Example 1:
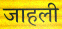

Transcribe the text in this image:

जाहली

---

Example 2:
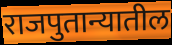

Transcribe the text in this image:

राजपुतान्यातील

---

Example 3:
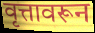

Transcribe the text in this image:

वृत्तावरून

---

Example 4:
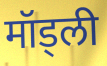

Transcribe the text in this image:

मॉड्ली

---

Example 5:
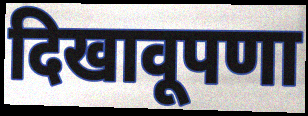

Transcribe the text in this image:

दिखावूपणा